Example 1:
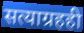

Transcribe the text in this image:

सत्याग्रहही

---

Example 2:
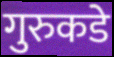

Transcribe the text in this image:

गुरुकडे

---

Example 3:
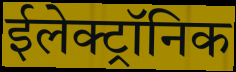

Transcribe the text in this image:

ईलेक्ट्रॉनिक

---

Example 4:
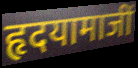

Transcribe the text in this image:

हृदयामाजीं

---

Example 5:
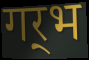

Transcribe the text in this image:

गर्भ